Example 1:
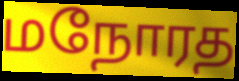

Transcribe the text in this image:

மநோரத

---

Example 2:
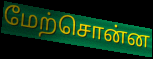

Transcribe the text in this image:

மேற்சொன்ன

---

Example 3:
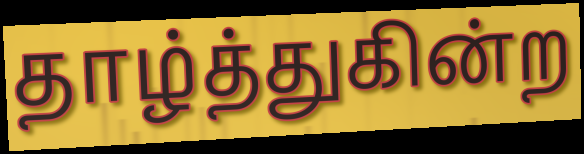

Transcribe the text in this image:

தாழ்த்துகின்ற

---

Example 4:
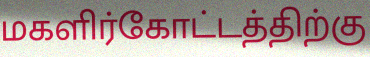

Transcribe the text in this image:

மகளிர்கோட்டத்திற்கு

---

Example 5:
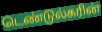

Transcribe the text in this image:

டெண்டுல்கரின்